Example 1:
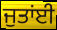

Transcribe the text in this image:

ਜੁਤਾਂਈ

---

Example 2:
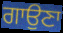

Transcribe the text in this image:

ਗਾਉਣਾ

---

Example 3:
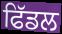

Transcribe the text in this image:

ਫਿੱਡਲ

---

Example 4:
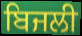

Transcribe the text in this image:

ਬਿਜਲੀ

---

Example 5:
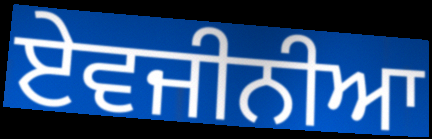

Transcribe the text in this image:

ਏਵਜੀਨੀਆ